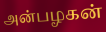
அன்பழகன்